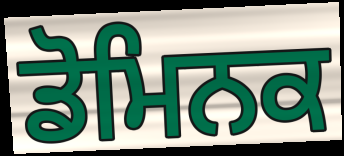
ਡੋਮਿਨਕ